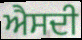
ਐਸਦੀ